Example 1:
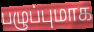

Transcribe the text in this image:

பழுப்புமாக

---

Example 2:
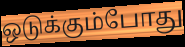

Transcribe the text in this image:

ஒடுக்கும்போது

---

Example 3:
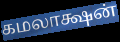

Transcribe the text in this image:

கமலாக்ஷன்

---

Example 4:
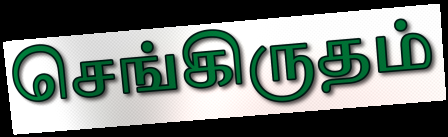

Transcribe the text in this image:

செங்கிருதம்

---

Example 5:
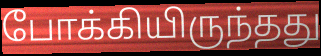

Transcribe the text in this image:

போக்கியிருந்தது